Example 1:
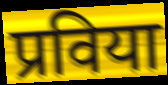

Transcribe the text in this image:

प्रविया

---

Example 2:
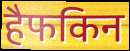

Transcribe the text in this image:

हैफकिन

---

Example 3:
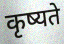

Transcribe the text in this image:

कृष्यते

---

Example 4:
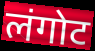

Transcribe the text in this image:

लंगोट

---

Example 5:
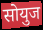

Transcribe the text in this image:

सोयुज